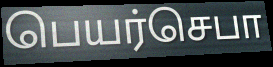
பெயர்செபா